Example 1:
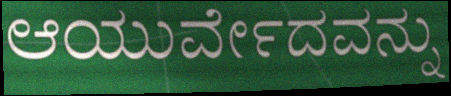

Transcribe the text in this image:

ಆಯುರ್ವೇದವನ್ನು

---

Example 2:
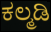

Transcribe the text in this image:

ಕಲ್ಮಡಿ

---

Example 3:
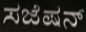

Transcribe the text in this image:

ಸಜೆಷನ್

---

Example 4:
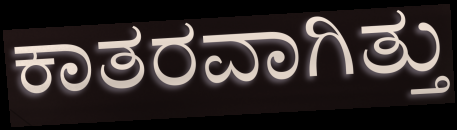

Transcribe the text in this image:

ಕಾತರವಾಗಿತ್ತು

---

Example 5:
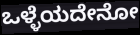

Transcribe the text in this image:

ಒಳ್ಳೆಯದೇನೋ